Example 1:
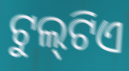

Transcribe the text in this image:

ଟୁଲ୍‍ଟିଏ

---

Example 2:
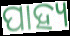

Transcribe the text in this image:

ପାହ୍ୟ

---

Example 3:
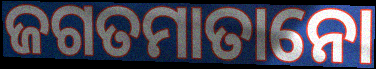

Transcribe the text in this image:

ଜଗତମାତାନୋ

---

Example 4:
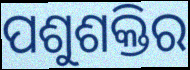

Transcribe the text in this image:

ପଶୁଶକ୍ତିର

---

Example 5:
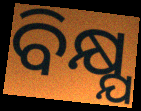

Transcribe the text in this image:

ବିକ୍ଷ୍ଯ